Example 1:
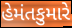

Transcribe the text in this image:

હેમંતકુમારે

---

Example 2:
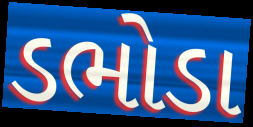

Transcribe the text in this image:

ડભોડા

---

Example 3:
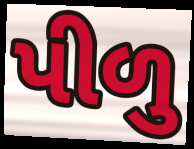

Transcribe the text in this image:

પીળુ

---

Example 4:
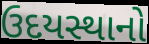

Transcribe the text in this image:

ઉદયસ્થાનો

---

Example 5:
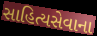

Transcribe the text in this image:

સાહિત્યસેવાના